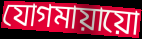
যোগমায়ায়ো